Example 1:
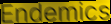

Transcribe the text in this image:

Endemics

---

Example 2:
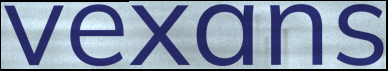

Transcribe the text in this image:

vexans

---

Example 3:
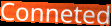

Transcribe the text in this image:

Conneted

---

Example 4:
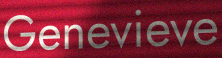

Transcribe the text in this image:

Genevieve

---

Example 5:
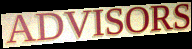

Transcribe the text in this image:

ADVISORS